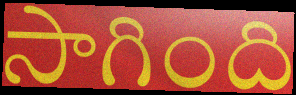
సాగింది